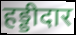
हड्डीदार